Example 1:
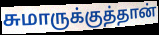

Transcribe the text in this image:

சுமாருக்குத்தான்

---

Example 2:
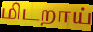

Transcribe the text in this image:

மிடறாய்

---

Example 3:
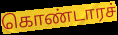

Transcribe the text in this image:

கொண்டாரச்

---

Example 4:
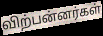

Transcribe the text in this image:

விற்பன்னர்கள்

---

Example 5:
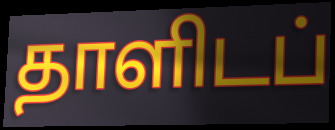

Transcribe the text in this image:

தாளிடப்